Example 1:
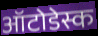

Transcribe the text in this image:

ऑटोडेस्क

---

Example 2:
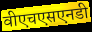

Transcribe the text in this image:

वीएचएसएनडी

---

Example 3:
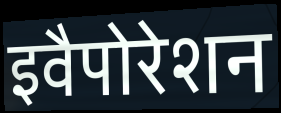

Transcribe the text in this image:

इवैपोरेशन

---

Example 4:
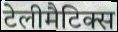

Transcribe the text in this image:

टेलीमैटिक्स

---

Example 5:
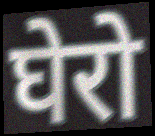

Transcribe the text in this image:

घेरो